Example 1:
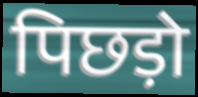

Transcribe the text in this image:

पिछड़ो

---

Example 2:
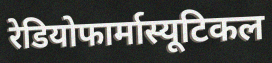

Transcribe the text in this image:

रेडियोफार्मास्यूटिकल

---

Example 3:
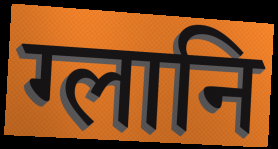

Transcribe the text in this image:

ग्लानि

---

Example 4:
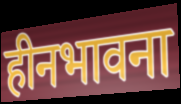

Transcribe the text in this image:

हीनभावना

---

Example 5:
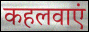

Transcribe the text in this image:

कहलवाएं